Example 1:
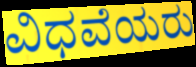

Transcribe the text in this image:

ವಿಧವೆಯರು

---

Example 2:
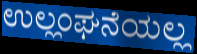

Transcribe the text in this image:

ಉಲ್ಲಂಘನೆಯಲ್ಲ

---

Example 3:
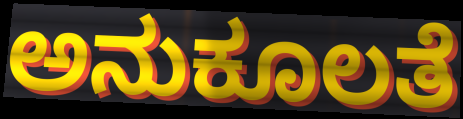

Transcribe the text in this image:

ಅನುಕೂಲತೆ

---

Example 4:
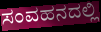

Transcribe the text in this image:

ಸಂವಹನದಲ್ಲಿ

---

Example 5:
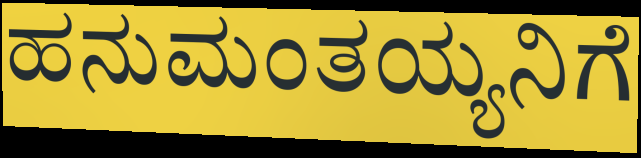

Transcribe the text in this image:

ಹನುಮಂತಯ್ಯನಿಗೆ